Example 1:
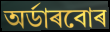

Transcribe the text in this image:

অৰ্ডাৰবোৰ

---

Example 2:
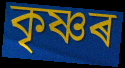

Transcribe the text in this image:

কৃষ্ণৰ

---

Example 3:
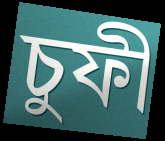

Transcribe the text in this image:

চুফী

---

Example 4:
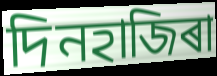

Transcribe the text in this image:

দিনহাজিৰা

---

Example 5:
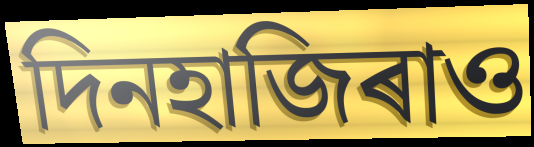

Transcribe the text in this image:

দিনহাজিৰাও